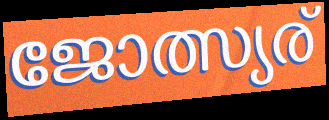
ജോത്സ്യര്